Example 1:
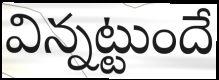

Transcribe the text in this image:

విన్నట్టుందే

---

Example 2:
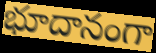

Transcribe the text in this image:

భూదానంగా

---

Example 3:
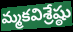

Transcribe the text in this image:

మ్మకవిశ్రేష్ఠు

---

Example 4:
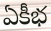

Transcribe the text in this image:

ఏకీభ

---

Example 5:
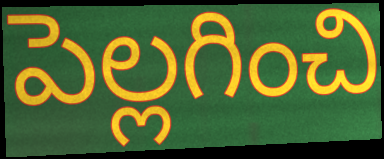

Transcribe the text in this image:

పెల్లగించి